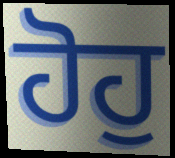
ਹੋਹੁ